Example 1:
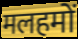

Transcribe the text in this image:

मलहमों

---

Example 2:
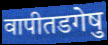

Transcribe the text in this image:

वापीतडगेषु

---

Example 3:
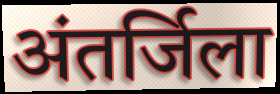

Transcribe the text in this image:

अंतर्जिला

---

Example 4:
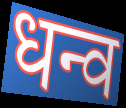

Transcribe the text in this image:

धन्व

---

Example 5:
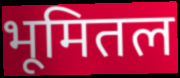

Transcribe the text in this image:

भूमितल